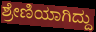
ಶ್ರೇಣಿಯಾಗಿದ್ದು